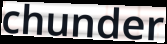
chunder